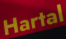
Hartal